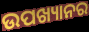
ଉପଖ୍ୟାନର